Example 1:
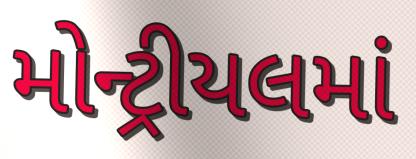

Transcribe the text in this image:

મોન્ટ્રીયલમાં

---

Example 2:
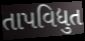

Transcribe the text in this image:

તાપવિદ્યુત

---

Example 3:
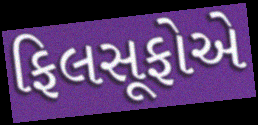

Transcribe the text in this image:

ફિલસૂફોએ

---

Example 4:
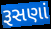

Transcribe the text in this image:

રૂસણાં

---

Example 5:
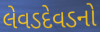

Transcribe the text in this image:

લેવડદેવડનો